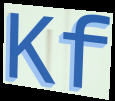
Kf